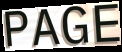
PAGE